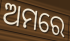
ଅମରେ